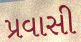
પ્રવાસી